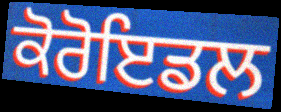
ਕੋਰੋਇਡਲ